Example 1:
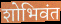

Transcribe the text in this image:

शोभिवंत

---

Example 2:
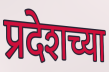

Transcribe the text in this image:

प्रदेशच्या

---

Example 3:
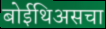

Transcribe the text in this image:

बोईथिअसचा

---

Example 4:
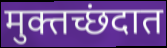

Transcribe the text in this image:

मुक्तच्छंदात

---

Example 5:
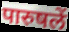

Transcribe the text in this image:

पारुषलें